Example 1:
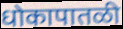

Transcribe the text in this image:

धोकापातळी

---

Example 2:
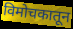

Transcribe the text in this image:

विमोचकातून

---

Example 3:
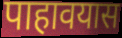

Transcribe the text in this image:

पाहावयास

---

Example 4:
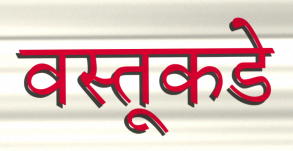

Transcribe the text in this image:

वस्तूकडे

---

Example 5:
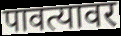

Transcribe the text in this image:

पावत्यावर